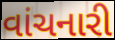
વાંચનારી